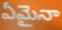
ఏమైనా